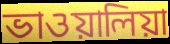
ভাওয়ালিয়া